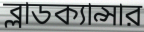
ব্লাডক্যান্সার